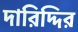
দারিদ্দির